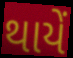
થાયેં